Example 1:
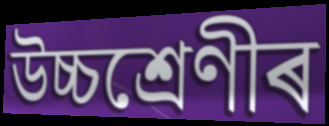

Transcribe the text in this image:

উচ্চশ্ৰেণীৰ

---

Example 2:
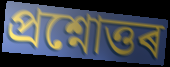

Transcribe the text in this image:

প্ৰশ্নোত্তৰ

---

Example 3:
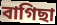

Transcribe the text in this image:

বাগিছা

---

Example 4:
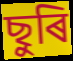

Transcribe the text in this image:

ছুৰি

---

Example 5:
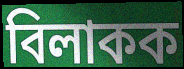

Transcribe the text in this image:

বিলাকক